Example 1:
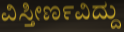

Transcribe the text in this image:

ವಿಸ್ತೀರ್ಣವಿದ್ದು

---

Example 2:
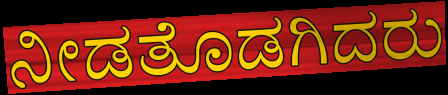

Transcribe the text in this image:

ನೀಡತೊಡಗಿದರು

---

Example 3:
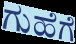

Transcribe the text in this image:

ಗುಹೆಗೆ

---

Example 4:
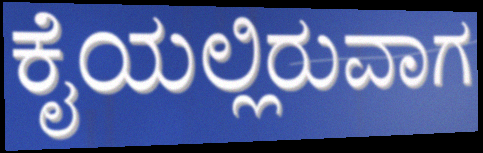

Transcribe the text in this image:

ಕೈಯಲ್ಲಿರುವಾಗ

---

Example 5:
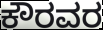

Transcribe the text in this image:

ಕೌರವರ